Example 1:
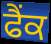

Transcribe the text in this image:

ਫੈਂਕ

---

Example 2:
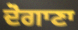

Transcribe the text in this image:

ਦੋਗਾਣਾ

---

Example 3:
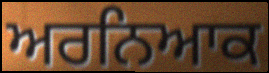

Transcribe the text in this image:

ਅਰਨਿਆਕ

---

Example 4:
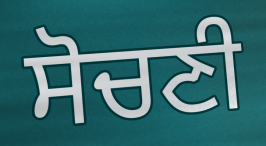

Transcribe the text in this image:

ਸੋਚਣੀ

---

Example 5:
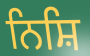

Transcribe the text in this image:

ਨਿਸ਼ਿ